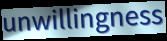
unwillingness